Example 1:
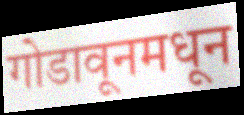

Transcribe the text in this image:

गोडावूनमधून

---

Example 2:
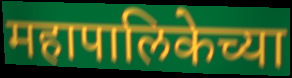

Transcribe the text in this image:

महापालिकेच्या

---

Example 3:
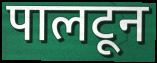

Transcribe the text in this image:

पालटून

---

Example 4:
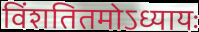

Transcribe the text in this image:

विंशतितमोऽध्यायः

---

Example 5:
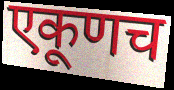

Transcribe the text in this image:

एकूणच